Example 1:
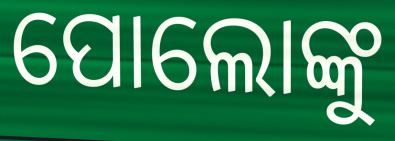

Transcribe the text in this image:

ପୋଲୋଙ୍କୁ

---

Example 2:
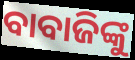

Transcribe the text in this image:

ବାବାଜିଙ୍କୁ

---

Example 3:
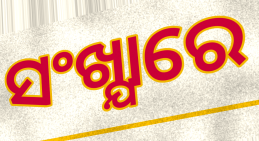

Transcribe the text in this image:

ସଂଖ୍ଯାରେ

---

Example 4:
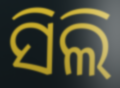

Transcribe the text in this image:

ସିଲି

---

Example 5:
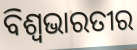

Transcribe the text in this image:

ବିଶ୍ୱଭାରତୀର